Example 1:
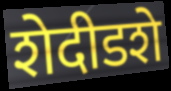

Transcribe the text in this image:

शेदीडशे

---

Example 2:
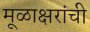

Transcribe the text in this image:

मूळाक्षरांची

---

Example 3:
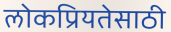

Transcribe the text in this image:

लोकप्रियतेसाठी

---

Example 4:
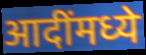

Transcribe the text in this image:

आदींमध्ये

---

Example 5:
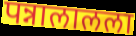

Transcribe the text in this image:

पन्नालालला